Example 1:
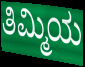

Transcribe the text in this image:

ತಿಮ್ಮಿಯ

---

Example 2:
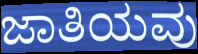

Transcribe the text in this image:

ಜಾತಿಯವು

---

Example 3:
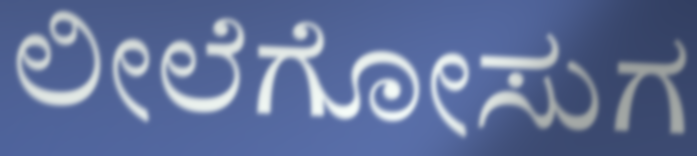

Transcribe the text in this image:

ಲೀಲೆಗೋಸುಗ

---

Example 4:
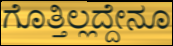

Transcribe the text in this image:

ಗೊತ್ತಿಲ್ಲದ್ದೇನೂ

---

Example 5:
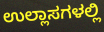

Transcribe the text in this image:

ಉಲ್ಲಾಸಗಳಲ್ಲಿ